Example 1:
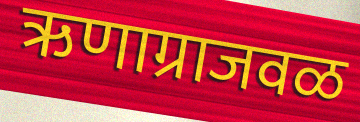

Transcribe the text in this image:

ऋणाग्राजवळ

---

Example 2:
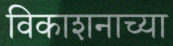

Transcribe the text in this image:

विकाशनाच्या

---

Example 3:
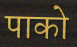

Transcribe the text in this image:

पाको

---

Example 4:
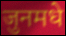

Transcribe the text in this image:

जुनमधे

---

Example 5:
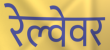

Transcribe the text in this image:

रेल्वेवर